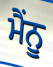
ਮੈਂਨੂ